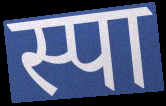
स्पा